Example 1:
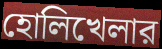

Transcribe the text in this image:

হোলিখেলার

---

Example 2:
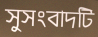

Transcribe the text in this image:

সুসংবাদটি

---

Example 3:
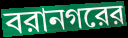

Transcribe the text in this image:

বরানগরের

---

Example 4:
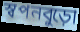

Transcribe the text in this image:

স্বপনবুড়ো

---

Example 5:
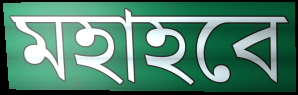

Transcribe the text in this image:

মহাহবে